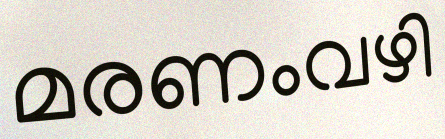
മരണംവഴി